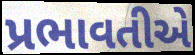
પ્રભાવતીએ